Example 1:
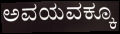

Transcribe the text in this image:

ಅವಯವಕ್ಕೂ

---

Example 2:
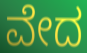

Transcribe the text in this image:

ವೇದ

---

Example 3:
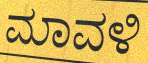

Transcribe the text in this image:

ಮಾವಳಿ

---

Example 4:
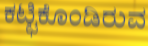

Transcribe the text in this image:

ಕಟ್ಟಿಕೊಂಡಿರುವ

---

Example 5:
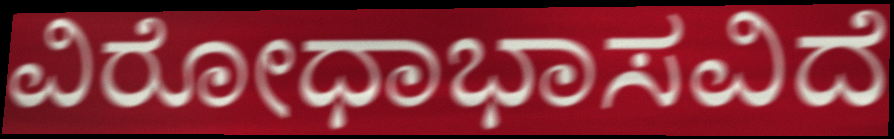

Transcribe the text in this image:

ವಿರೋಧಾಭಾಸವಿದೆ